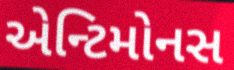
એન્ટિમોનસ